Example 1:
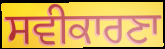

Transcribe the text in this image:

ਸਵੀਕਾਰਣਾ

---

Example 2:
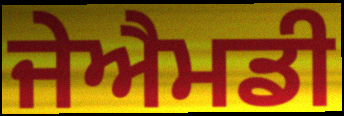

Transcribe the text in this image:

ਜੇਐਮਡੀ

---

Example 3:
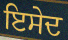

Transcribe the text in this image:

ਇਸੇਦ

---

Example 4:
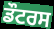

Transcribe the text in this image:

ਡੌਟਰਸ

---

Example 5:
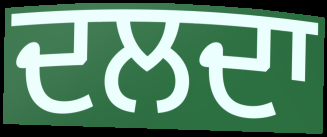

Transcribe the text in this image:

ਦਲਦਾ